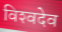
विश्वदेव